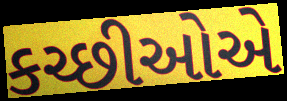
કચ્છીઓએ